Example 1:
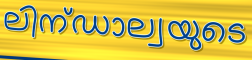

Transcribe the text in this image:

ലിന്ഡാല്വയുടെ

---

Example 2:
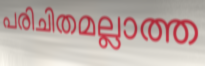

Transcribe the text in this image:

പരിചിതമല്ലാത്ത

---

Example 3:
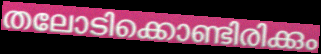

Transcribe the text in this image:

തലോടിക്കൊണ്ടിരിക്കും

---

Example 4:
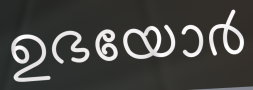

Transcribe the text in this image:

ഉഭയോർ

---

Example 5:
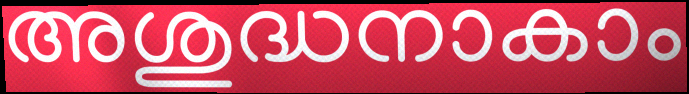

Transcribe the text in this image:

അശുദ്ധനാകാം